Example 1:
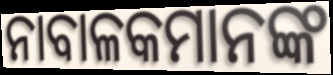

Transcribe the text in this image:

ନାବାଳକମାନଙ୍କ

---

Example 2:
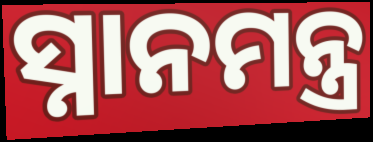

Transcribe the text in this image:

ସ୍ନାନମନ୍ତ୍ର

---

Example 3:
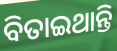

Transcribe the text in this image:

ବିତାଇଥାନ୍ତି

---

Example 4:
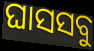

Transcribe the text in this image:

ଘାସସବୁ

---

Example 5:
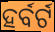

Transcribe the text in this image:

ହର୍ବର୍ଟ